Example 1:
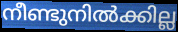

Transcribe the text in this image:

നീണ്ടുനിൽക്കില്ല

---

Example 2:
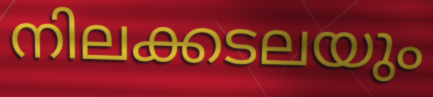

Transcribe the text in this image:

നിലക്കടലയും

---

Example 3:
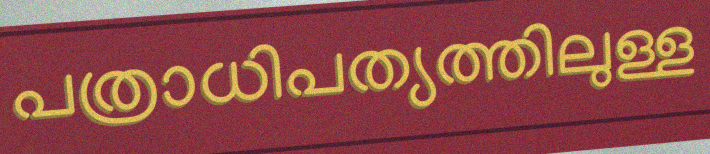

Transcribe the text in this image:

പത്രാധിപത്യത്തിലുള്ള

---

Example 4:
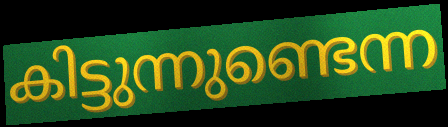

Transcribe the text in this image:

കിട്ടുന്നുണ്ടെന്ന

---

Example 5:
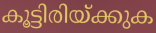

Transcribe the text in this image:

കൂട്ടിരിയ്ക്കുക